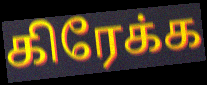
கிரேக்க